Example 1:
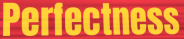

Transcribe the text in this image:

Perfectness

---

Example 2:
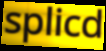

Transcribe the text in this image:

splicd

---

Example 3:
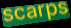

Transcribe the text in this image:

scarps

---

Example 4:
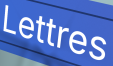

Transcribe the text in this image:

Lettres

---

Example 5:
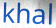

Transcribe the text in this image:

khal